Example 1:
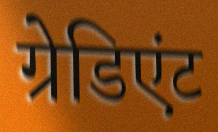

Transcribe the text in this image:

ग्रेडिएंट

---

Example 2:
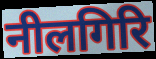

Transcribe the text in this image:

नीलगिरि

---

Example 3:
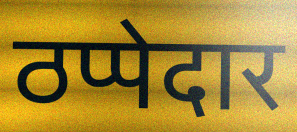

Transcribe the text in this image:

ठप्पेदार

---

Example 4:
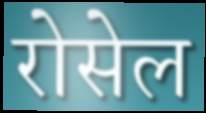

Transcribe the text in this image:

रोसेल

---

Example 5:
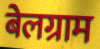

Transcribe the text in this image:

बेलग्राम